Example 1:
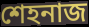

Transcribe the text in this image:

শেহনাজ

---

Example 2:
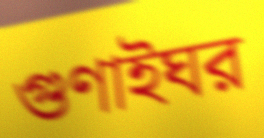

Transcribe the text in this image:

গুণাইঘর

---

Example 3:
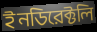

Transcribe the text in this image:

ইনডিরেক্টলি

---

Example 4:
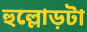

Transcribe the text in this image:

হুল্লোড়টা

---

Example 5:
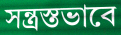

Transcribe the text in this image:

সন্ত্রস্তভাবে